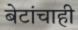
बेटांचाही